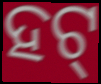
ହଟ୍